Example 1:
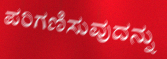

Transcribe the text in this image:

ಪರಿಗಣಿಸುವುದನ್ನು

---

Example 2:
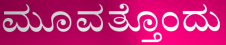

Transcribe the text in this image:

ಮೂವತ್ತೊಂದು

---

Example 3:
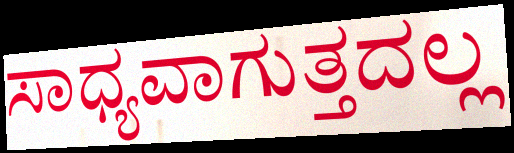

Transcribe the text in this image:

ಸಾಧ್ಯವಾಗುತ್ತದಲ್ಲ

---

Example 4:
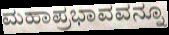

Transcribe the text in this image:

ಮಹಾಪ್ರಭಾವವನ್ನೂ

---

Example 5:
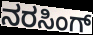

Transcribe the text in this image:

ನರಸಿಂಗ್